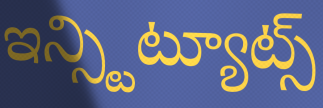
ఇన్స్టిట్యూట్స్